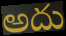
అదు